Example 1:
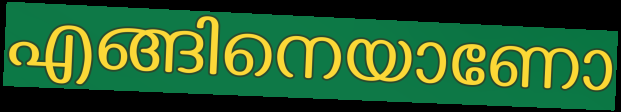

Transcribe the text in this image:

എങ്ങിനെയാണോ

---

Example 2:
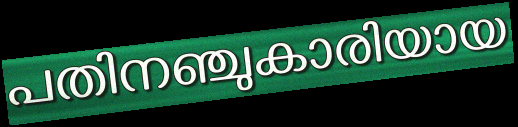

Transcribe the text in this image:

പതിനഞ്ചുകാരിയായ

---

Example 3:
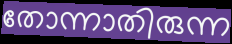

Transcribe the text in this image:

തോന്നാതിരുന്ന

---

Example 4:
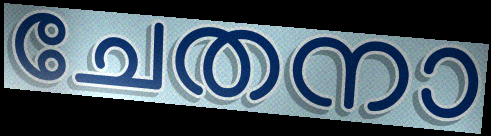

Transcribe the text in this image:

ചേതനാ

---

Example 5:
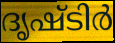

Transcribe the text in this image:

ദൃഷ്ടിർ